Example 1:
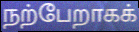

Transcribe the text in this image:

நற்பேறாகக்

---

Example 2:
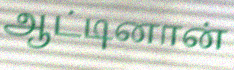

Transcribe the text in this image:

ஆட்டினான்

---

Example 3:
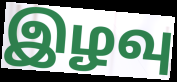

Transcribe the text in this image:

இழவு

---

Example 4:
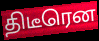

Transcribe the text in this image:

திடீரென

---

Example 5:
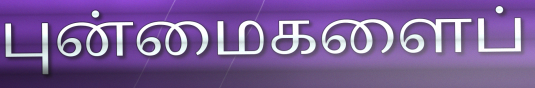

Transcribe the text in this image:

புன்மைகளைப்